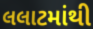
લલાટમાંથી